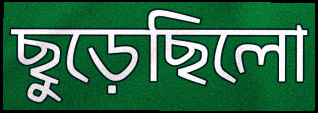
ছুড়েছিলো